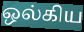
ஒல்கிய